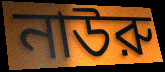
নাউরু